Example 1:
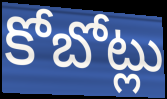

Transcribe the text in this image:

కోబోట్లు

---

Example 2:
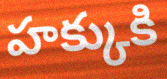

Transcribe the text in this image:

హక్కుకి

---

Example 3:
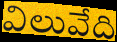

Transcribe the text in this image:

విలువేది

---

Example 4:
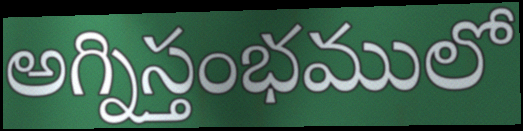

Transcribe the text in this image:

అగ్నిస్తంభములో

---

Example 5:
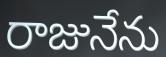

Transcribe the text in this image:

రాజునేను